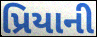
પ્રિયાની